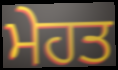
ਮੇਹਤ